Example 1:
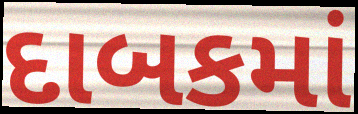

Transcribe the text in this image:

દાબકમાં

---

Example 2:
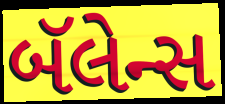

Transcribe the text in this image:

બૅલેન્સ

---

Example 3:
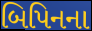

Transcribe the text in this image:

બિપિનના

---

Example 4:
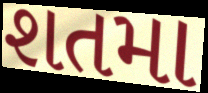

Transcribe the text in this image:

શતમા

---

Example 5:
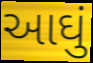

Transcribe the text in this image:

આઘું